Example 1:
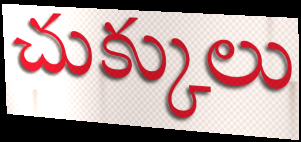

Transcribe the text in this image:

చుక్కులు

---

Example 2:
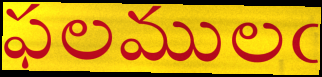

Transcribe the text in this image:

ఫలములఁ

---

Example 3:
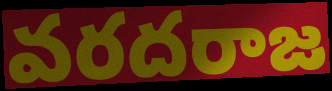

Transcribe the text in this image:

వరదరాజ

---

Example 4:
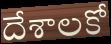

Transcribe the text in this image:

దేశాలకో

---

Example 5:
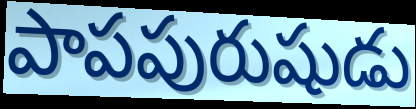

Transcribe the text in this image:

పాపపురుషుడు